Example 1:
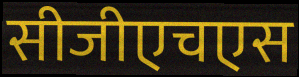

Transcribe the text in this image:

सीजीएचएस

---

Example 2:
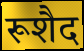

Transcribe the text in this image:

रूशैद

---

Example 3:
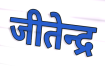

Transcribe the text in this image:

जीतेन्द्र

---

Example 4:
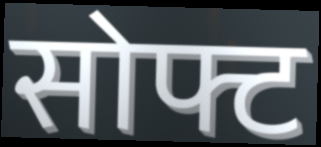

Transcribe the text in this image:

सोफ्ट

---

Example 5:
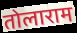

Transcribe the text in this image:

तोलाराम